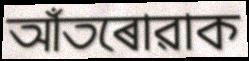
আঁতৰোৱাক